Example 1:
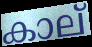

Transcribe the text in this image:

കാല്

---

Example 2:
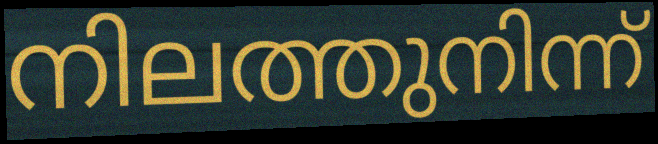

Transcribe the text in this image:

നിലത്തുനിന്ന്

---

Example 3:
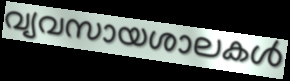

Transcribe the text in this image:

വ്യവസായശാലകൾ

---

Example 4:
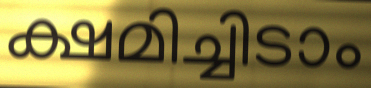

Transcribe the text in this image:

ക്ഷമിച്ചിടാം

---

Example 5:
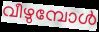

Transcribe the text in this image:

വീഴുമ്പോൾ